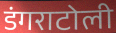
डंगराटोली